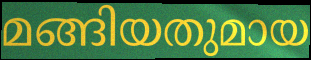
മങ്ങിയതുമായ